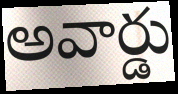
అవార్డు